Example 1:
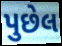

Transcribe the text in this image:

પુછેલ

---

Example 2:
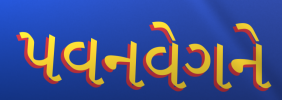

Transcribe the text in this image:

પવનવેગને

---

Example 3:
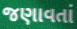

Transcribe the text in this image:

જણાવતાં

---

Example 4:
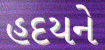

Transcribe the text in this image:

હદયને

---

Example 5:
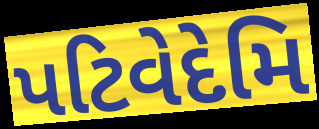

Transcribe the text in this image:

પટિવેદેમિ